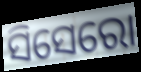
ସିସେରୋ